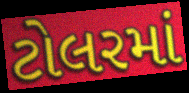
ટોલરમાં